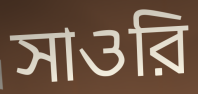
সাওরি